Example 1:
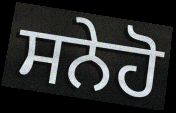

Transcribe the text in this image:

ਸਨੇਹੋ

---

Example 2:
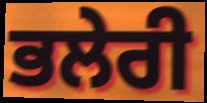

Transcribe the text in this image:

ਭਲੇਰੀ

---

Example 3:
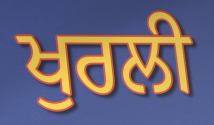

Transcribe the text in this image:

ਖੁਰਲੀ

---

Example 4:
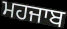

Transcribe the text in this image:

ਮਹਜਾਬ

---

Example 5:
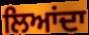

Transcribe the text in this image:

ਲਿਆਂਦਾ